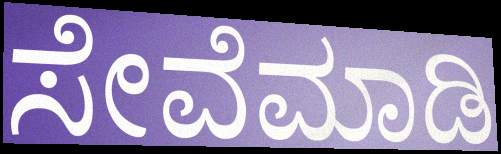
ಸೇವೆಮಾಡಿ